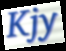
Kjy